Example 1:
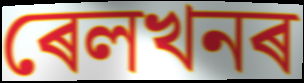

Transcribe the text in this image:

ৰেলখনৰ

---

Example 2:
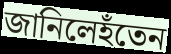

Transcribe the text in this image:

জানিলেহঁতেন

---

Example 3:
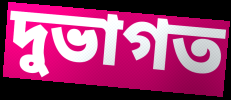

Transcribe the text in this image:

দুভাগত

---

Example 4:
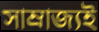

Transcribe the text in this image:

সাম্ৰাজ্যই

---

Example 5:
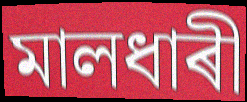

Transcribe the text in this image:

মালধাৰী